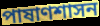
পাষাণশাসন